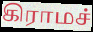
கிராமச்